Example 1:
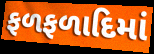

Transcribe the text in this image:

ફળફળાદિમાં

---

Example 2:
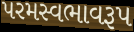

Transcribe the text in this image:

પરમસ્વભાવરૂપ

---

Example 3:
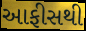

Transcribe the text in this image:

આફીસથી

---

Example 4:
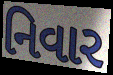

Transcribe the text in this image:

નિવાર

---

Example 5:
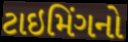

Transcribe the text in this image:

ટાઇમિંગનો